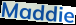
Maddie